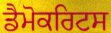
ਡੈਮੋਕਰਿਟਸ